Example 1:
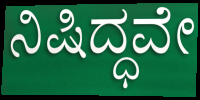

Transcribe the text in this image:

ನಿಷಿದ್ಧವೇ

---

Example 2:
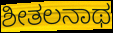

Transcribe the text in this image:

ಶೀತಲನಾಥ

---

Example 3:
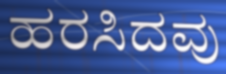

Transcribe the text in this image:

ಹರಸಿದವು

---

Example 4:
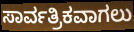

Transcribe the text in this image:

ಸಾರ್ವತ್ರಿಕವಾಗಲು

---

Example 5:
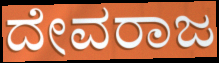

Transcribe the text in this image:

ದೇವರಾಜ